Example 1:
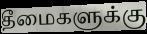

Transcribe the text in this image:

தீமைகளுக்கு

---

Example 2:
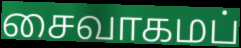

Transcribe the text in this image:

சைவாகமப்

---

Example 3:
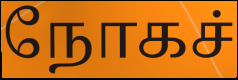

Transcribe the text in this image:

நோகச்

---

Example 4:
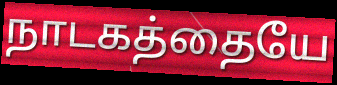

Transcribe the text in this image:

நாடகத்தையே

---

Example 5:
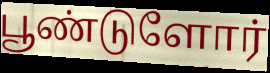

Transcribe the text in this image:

பூண்டுளோர்